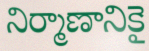
నిర్మాణానికై